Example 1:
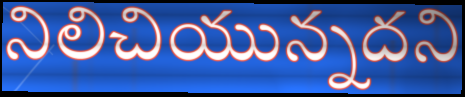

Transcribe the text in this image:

నిలిచియున్నదని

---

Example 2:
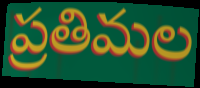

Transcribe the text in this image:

ప్రతిమల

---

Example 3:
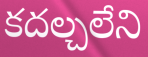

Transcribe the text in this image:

కదల్చలేని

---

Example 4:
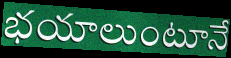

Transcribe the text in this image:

భయాలుంటూనే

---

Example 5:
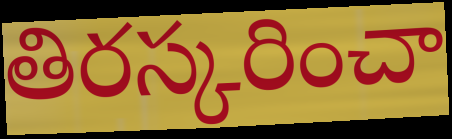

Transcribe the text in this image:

తిరస్కరించా